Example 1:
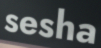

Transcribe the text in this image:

sesha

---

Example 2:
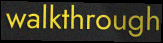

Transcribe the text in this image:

walkthrough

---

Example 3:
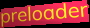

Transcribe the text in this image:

preloader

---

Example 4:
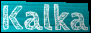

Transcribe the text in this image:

Kalka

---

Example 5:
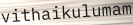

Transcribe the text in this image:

vithaikulumam